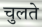
चुलते